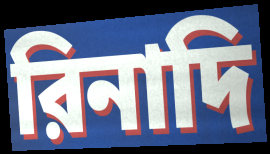
রিনাদি